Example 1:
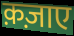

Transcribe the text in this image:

क़ज़ाए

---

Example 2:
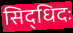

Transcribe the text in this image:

सिद्धिदः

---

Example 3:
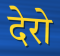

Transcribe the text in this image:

देरो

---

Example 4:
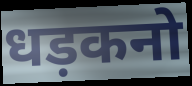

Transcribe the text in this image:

धड़कनो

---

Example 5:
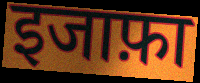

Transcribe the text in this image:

इजाफ़ा